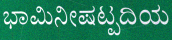
ಭಾಮಿನೀಷಟ್ಪದಿಯ